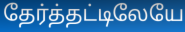
தேர்த்தட்டிலேயே